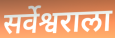
सर्वेश्वराला